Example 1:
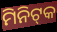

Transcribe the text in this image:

ମିନିଟ୍‌କ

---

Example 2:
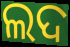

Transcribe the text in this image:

ଲଦ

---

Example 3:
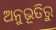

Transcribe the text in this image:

ଅନୁଭୂତିରୁ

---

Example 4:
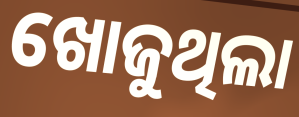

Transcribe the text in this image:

ଖୋଜୁଥିଲା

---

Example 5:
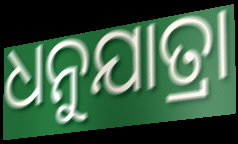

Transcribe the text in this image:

ଧନୁଯାତ୍ରା